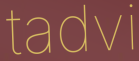
tadvi